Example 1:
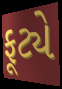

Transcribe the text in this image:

ફૂટ્યે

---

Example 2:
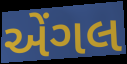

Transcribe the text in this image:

એંગલ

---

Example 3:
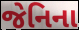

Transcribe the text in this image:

જેનિના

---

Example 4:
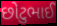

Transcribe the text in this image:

છોટુભાઈ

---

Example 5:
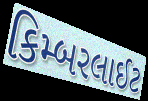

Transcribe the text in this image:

કિમ્બરલાઈટ